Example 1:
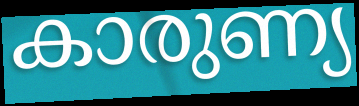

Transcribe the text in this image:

കാരുണ്യ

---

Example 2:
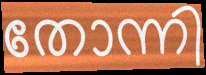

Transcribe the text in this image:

തോന്നി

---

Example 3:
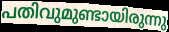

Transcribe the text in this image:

പതിവുമുണ്ടായിരുന്നു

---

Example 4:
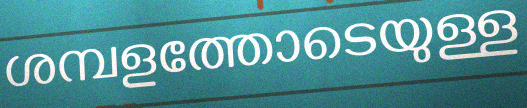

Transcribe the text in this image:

ശമ്പളത്തോടെയുള്ള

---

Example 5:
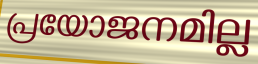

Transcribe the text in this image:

പ്രയോജനമില്ല